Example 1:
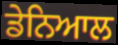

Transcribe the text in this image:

ਡੇਨਿਆਲ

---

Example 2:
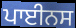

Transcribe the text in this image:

ਪਾਈਨਸ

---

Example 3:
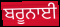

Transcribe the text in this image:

ਬਰੂਨਾਈ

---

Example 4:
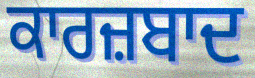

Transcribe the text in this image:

ਕਾਰਜ਼ਬਾਦ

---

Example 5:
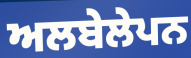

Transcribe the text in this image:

ਅਲਬੇਲੇਪਨ